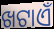
ଖଟାଏଁ